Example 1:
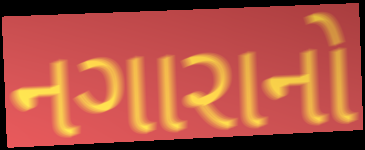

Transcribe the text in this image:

નગારાનો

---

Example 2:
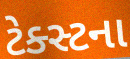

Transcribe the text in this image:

ટેક્સ્ટના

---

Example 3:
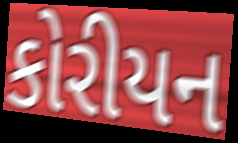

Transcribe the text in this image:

કોરીયન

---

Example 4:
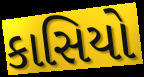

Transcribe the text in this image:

કાસિયો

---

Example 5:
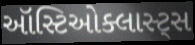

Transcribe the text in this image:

ઑસ્ટિઓક્લાસ્ટ્સ